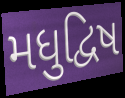
મધુદ્વિષ